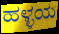
ಹಳ್ಳಯ